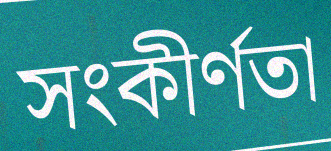
সংকীৰ্ণতা